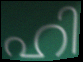
ഹി